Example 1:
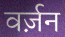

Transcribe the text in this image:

वर्ज़न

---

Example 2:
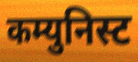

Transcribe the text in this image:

कम्युनिस्ट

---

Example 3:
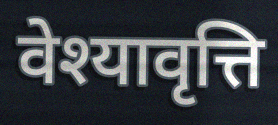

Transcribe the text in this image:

वेश्यावृत्ति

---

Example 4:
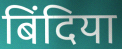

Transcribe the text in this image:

बिंदिया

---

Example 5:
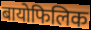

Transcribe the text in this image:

बायोफिलिक